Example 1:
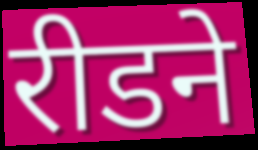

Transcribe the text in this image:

रीडने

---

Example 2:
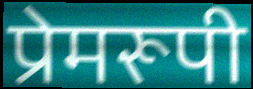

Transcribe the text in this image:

प्रेमरूपी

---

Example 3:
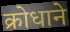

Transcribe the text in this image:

क्रोधाने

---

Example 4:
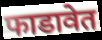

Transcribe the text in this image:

फाडावेत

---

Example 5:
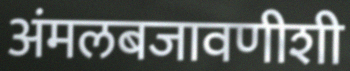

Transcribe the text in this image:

अंमलबजावणीशी